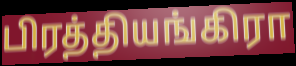
பிரத்தியங்கிரா